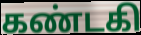
கண்டகி